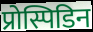
प्रोस्पिडिन